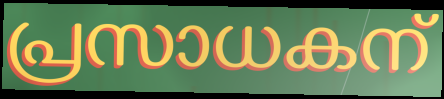
പ്രസാധകന്